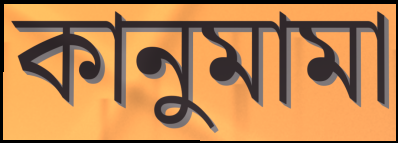
কানুমামা